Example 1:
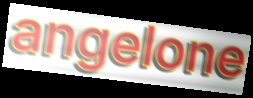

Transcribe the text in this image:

angelone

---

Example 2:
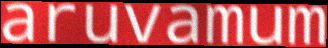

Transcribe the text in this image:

aruvamum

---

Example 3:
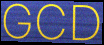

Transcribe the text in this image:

GCD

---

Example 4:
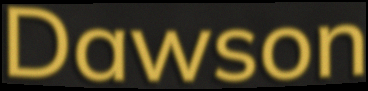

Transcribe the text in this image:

Dawson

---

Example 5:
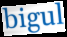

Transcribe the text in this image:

bigul